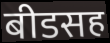
बीडसह